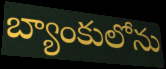
బ్యాంకులోను